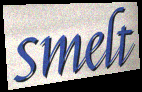
smelt